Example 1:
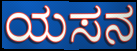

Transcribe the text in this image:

ಯಸನ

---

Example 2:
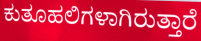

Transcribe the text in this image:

ಕುತೂಹಲಿಗಳಾಗಿರುತ್ತಾರೆ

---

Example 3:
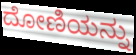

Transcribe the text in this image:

ದೋಣಿಯನ್ನು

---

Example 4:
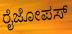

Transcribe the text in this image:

ರೈಜೋಪಸ್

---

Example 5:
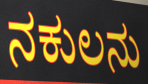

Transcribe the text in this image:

ನಕುಲನು